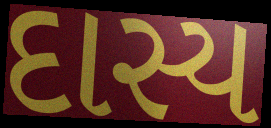
દાસ્ય